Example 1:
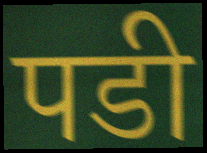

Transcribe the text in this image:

पडी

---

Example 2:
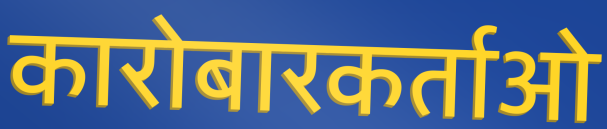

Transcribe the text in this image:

कारोबारकर्ताओ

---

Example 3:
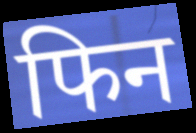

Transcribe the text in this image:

फिन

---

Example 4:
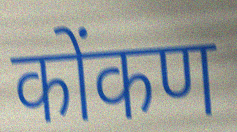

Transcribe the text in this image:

कोंकण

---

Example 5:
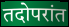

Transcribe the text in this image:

तदोपरांत